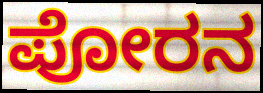
ಪೋರನ